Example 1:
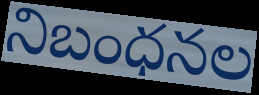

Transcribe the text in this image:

నిబంధనల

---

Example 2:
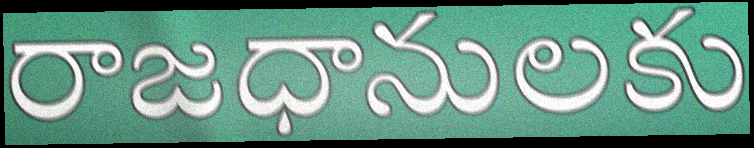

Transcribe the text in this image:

రాజధానులకు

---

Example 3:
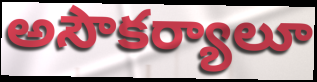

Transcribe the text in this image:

అసౌకర్యాలూ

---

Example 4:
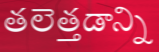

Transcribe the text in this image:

తలెత్తడాన్ని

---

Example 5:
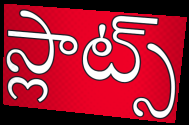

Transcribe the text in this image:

స్లాట్స్